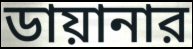
ডায়ানার